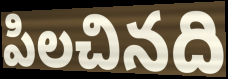
పిలచినది